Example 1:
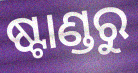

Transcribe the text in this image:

ଷ୍ଟାଣ୍ଡରୁ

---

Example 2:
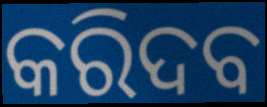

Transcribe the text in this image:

କରିଦବ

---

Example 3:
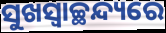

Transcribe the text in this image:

ସୁଖସ୍ଵାଚ୍ଛନ୍ଦ୍ୟରେ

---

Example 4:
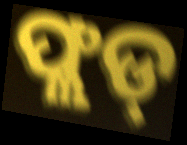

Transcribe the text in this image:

ଫ୍ଲଡ୍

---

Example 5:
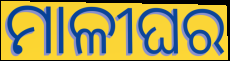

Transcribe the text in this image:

ମାଳୀଘର